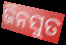
ଜିନସୁତ